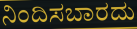
ನಿಂದಿಸಬಾರದು